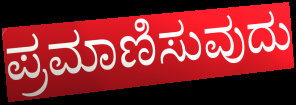
ಪ್ರಮಾಣಿಸುವುದು